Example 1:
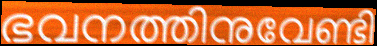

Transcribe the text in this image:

ഭവനത്തിനുവേണ്ടി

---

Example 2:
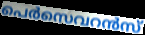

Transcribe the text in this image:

പെർസെവറൻസ്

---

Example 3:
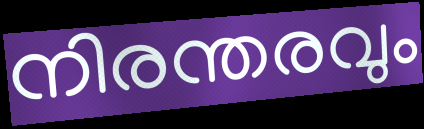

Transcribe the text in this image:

നിരന്തരവും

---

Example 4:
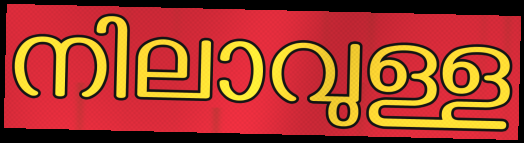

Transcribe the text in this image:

നിലാവുള്ള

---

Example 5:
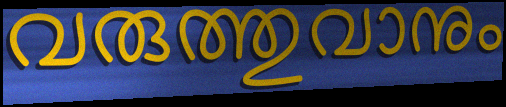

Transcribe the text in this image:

വരുത്തുവാനും